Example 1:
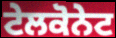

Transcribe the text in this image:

ਟੇਲਕੋਨੇਟ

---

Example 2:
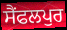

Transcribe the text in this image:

ਸੈਂਫਲਪੁਰ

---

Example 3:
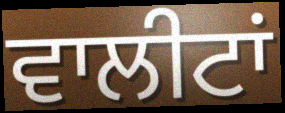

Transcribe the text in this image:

ਵਾਲੀਟਾਂ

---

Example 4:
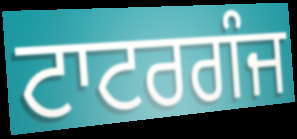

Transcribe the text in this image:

ਟਾਟਰਗੰਜ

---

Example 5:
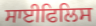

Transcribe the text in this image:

ਸਾਈਫਿਲਿਸ